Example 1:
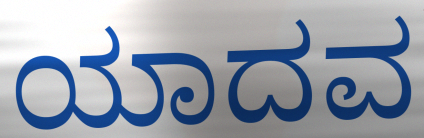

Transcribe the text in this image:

ಯಾದವ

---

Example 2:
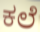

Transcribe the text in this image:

ಕಲೆ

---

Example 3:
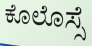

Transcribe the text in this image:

ಕೊಲೊಸ್ಸೆ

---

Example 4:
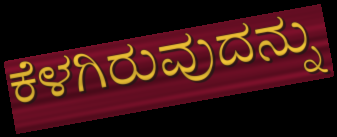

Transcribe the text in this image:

ಕೆಳಗಿರುವುದನ್ನು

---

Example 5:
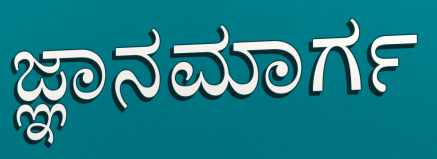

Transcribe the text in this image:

ಜ್ಞಾನಮಾರ್ಗ